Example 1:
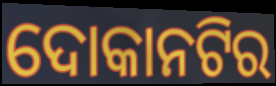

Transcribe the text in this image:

ଦୋକାନଟିର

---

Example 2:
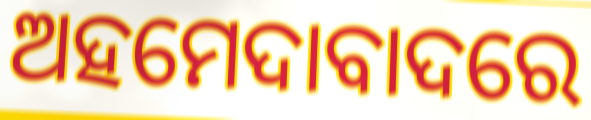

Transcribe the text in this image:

ଅହମେଦାବାଦରେ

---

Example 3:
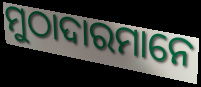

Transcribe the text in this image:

ମୁଠାଦାରମାନେ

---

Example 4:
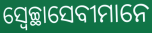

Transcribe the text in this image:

ସ୍ୱେଚ୍ଛାସେବୀମାନେ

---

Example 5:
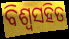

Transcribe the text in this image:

ବିଶ୍ଵସହିତ